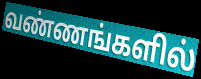
வண்ணங்களில்